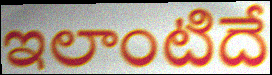
ఇలాంటిదే